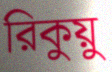
রিকুয়ু